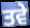
ਤਵੇ